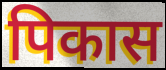
पिकास